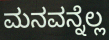
ಮನವನ್ನೆಲ್ಲ